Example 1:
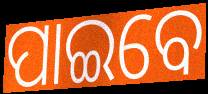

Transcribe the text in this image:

ପାଇବେ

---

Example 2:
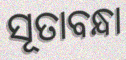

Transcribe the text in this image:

ସୂତାବନ୍ଧା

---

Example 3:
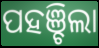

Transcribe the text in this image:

ପହଞ୍ଚିଲା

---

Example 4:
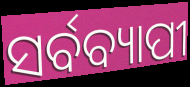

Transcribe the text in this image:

ସର୍ବବ୍ୟାପୀ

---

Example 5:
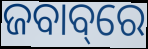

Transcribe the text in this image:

ଜବାବ୍‌ରେ